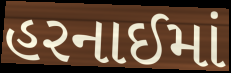
હરનાઈમાં